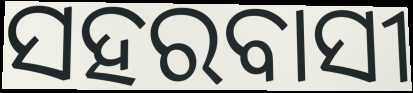
ସହରବାସୀ